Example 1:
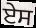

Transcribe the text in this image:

ਏਸ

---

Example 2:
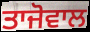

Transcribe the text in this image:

ਤਾਜੋਵਾਲ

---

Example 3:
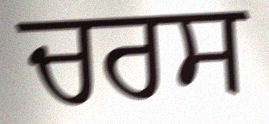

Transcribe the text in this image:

ਚਰਸ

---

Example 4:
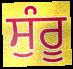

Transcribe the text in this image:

ਸੁੰਰੂ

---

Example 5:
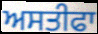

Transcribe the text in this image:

ਅਸਤੀਫਾ